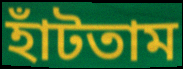
হাঁটতাম